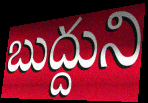
బుద్దుని